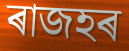
ৰাজহৰ